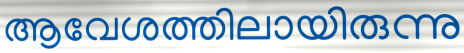
ആവേശത്തിലായിരുന്നു